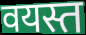
वयस्त